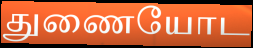
துணையோட